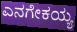
ಎನಗೇಕಯ್ಯ